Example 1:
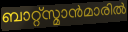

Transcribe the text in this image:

ബാറ്റ്സ്മാൻമാരിൽ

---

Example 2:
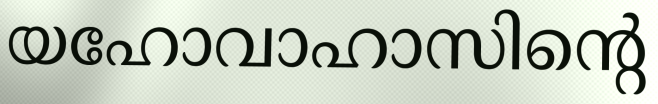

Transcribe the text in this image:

യഹോവാഹാസിന്റെ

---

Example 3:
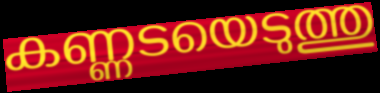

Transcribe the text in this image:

കണ്ണടയെടുത്തു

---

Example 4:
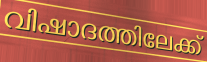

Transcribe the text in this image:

വിഷാദത്തിലേക്ക്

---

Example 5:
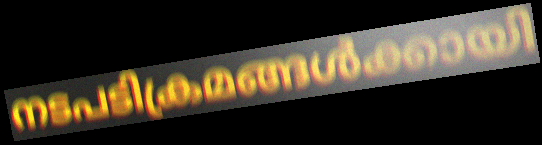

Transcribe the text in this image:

നടപടിക്രമങ്ങൾക്കായി